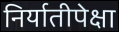
निर्यातीपेक्षा